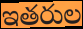
ఇతరుల